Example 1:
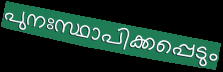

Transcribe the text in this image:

പുനഃസ്ഥാപിക്കപ്പെടും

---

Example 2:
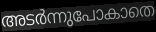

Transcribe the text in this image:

അടർന്നുപോകാതെ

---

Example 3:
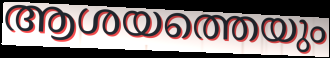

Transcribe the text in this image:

ആശയത്തെയും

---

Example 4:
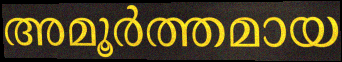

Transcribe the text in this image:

അമൂർത്തമായ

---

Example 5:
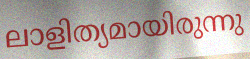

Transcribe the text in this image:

ലാളിത്യമായിരുന്നു